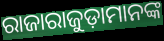
ରାଜାରାଜୁଡ଼ାମାନଙ୍କ